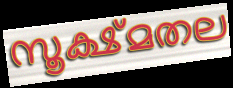
സൂക്ഷ്മതല